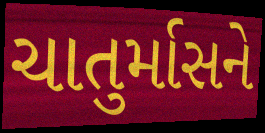
ચાતુર્માસને